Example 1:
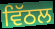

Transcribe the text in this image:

ਵਿੱਠਲ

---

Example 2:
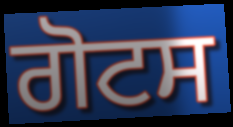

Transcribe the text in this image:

ਗੋਟਸ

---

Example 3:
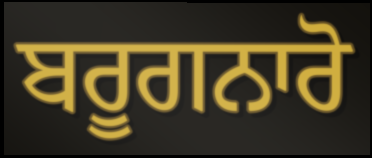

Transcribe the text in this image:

ਬਰੂਗਨਾਰੋ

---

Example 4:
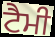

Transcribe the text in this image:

ਟੈਮੀ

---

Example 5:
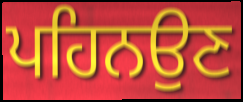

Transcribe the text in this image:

ਪਹਿਨਉਣ